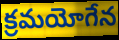
క్రమయోగేన